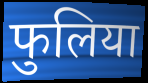
फुलिया